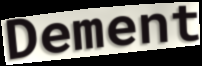
Dement